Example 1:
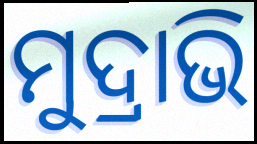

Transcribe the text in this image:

ମୁଦ୍ରାଭି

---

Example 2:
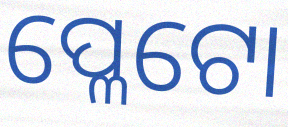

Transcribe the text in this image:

ପ୍ଳେଟୋ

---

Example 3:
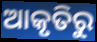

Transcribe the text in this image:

ଆକୃତିରୁ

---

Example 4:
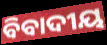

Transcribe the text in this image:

ବିବାଦୀୟ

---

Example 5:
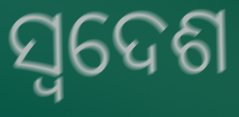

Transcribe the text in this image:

ସ୍ୱଦେଶ